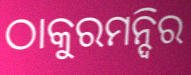
ଠାକୁରମନ୍ଦିର